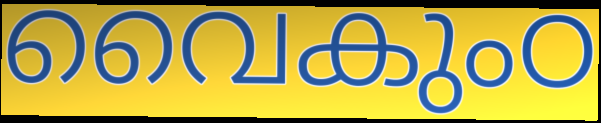
വൈകുംഠ